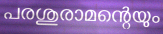
പരശുരാമന്റെയും